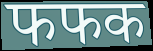
फफक